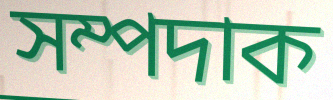
সম্পদাক